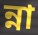
ন্না